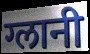
ग्लानी